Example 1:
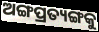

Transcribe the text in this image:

ଅଙ୍ଗପ୍ରତ୍ୟଙ୍ଗକୁ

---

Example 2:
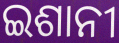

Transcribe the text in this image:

ଇଶାନୀ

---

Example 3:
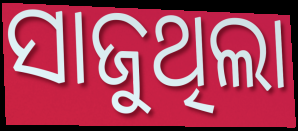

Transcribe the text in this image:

ସାଜୁଥିଲା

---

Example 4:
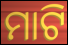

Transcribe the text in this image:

ମାଟି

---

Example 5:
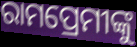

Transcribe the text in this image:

ରାମପ୍ରେମୀଙ୍କୁ